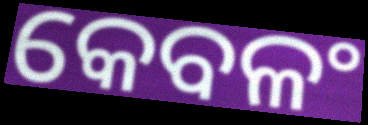
କେବଳଂ